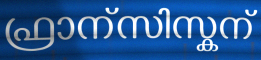
ഫ്രാന്സിസ്കന്